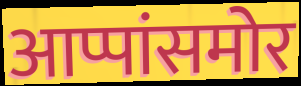
आप्पांसमोर